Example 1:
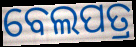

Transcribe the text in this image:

ବେଲପତ୍ର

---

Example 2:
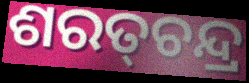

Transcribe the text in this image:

ଶରତ୍‌ଚନ୍ଦ୍ର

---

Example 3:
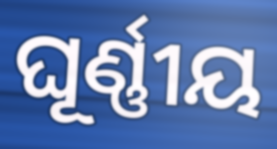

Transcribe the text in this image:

ଘୂର୍ଣ୍ଣୀୟ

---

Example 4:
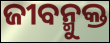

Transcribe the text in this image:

ଜୀବନ୍ମୁକ୍ତ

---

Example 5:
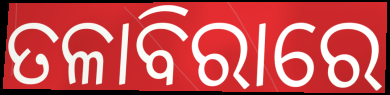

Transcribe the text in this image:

ତଳାବିରାରେ